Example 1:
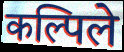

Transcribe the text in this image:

कल्पिले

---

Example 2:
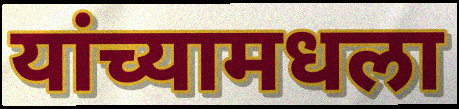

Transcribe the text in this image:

यांच्यामधला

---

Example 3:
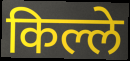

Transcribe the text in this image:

किल्ले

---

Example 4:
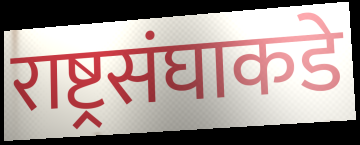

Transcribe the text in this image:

राष्ट्रसंघाकडे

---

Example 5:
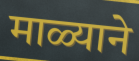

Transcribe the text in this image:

माळ्याने